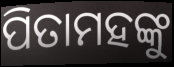
ପିତାମହଙ୍କୁ